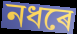
নধৰে